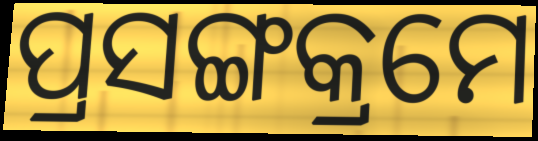
ପ୍ରସଙ୍ଗକ୍ରମେ